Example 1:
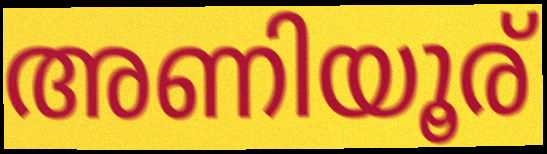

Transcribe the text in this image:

അണിയൂര്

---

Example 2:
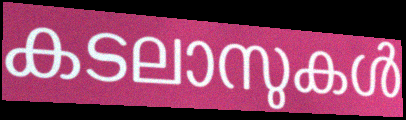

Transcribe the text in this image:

കടലാസുകൾ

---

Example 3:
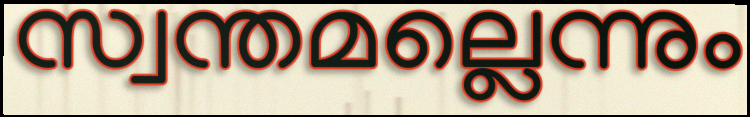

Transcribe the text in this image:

സ്വന്തമല്ലെന്നും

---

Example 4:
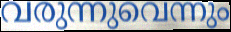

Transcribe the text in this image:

വരുന്നുവെന്നും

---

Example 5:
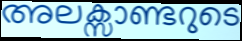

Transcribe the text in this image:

അലക്സാണ്ടറുടെ